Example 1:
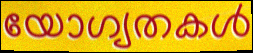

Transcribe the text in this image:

യോഗ്യതകൾ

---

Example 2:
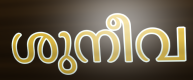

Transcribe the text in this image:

ശുനീവ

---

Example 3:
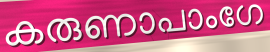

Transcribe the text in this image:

കരുണാപാംഗേ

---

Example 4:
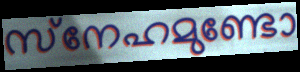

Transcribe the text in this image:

സ്‌നേഹമുണ്ടോ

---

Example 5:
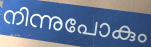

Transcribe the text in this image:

നിന്നുപോകും